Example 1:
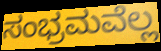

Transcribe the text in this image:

ಸಂಭ್ರಮವೆಲ್ಲ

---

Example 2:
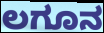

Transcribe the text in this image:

ಲಗೂನ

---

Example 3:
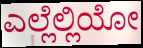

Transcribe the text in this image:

ಎಲ್ಲೆಲ್ಲಿಯೋ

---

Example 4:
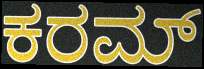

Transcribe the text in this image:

ಕರಮ್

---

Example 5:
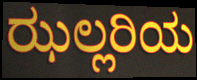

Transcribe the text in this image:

ಝಲ್ಲರಿಯ